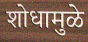
शोधामुळे